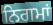
ਨਿਗਮਾਂ